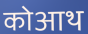
कोआथ